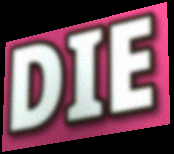
DIE